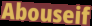
Abouseif